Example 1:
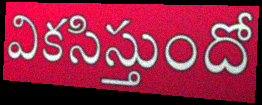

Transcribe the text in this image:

వికసిస్తుందో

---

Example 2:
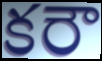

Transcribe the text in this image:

కరౌ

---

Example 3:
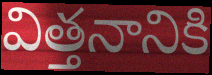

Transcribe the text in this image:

విత్తనానికి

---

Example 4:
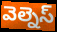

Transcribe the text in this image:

వెల్నెస్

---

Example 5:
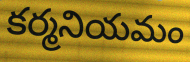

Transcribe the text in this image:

కర్మనియమం